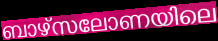
ബാഴ്സലോണയിലെ